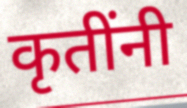
कृतींनी